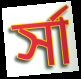
র্সা